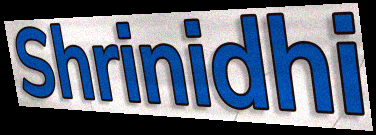
Shrinidhi